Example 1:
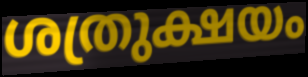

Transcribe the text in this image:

ശത്രുക്ഷയം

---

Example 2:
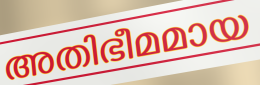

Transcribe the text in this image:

അതിഭീമമായ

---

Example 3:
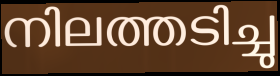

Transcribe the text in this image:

നിലത്തടിച്ചു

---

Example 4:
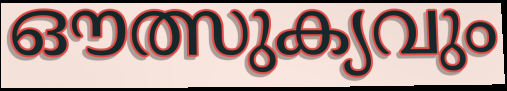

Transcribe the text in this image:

ഔത്സുക്യവും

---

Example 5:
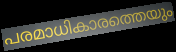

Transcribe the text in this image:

പരമാധികാരത്തെയും